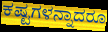
ಕಷ್ಟಗಳನ್ನಾದರೂ